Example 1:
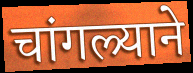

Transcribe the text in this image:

चांगल्याने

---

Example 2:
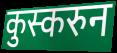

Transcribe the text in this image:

कुस्करुन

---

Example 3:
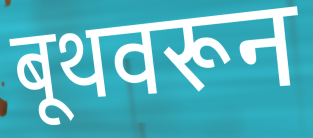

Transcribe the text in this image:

बूथवरून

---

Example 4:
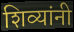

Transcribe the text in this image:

शिव्यांनी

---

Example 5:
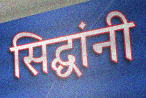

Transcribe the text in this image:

सिद्घांनी